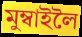
মুম্বাইলৈ